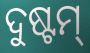
ଦୁଷ୍ଟମ୍